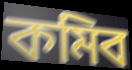
কমিব